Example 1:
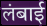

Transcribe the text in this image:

लंबाई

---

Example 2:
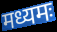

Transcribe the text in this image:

मध्यमः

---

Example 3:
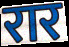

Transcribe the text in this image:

रार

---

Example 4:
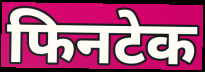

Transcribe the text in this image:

फिनटेक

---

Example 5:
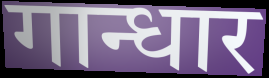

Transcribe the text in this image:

गान्धार